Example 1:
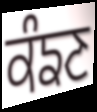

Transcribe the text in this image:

ਕੰਙਣ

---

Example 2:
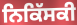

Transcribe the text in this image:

ਨਿਕਿੱਸਕੀ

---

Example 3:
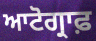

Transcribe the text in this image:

ਆਟੋਗ੍ਰਾਫ਼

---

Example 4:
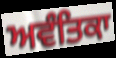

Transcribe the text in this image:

ਅਵੰਤਿਕਾ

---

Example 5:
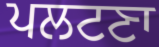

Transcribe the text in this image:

ਪਲਟਣਾ